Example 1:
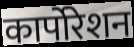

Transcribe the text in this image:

कार्पोरेशन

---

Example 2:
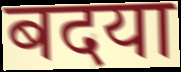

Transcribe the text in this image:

बदया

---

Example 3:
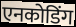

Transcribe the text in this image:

एनकोडिंग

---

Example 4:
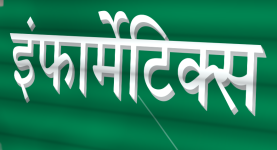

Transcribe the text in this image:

इंफार्मेटिक्स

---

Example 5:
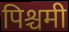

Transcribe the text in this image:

पिश्चमी